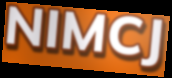
NIMCJ